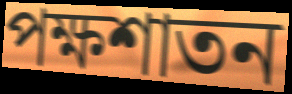
পক্ষশাতন